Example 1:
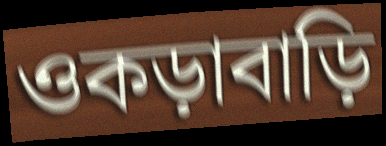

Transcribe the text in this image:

ওকড়াবাড়ি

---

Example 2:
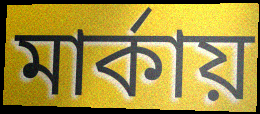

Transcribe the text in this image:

মার্কায়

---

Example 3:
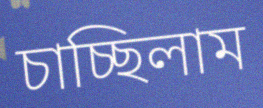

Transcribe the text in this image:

চাচ্ছিলাম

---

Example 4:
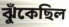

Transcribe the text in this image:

ঝুঁকেছিল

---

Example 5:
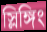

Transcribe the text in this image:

স্লিঙ্গিং